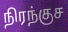
நிரந்குச